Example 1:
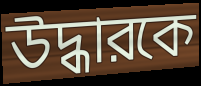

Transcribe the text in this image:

উদ্ধারকে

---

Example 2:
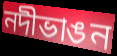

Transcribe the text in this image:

নদীভাঙন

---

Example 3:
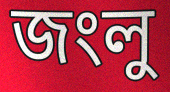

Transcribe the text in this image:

জংলু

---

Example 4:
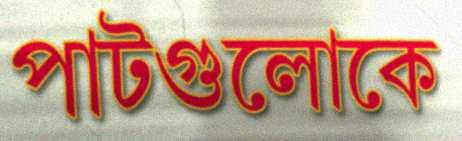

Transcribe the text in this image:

পাটগুলোকে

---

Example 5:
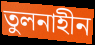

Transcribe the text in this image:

তুলনাহীন